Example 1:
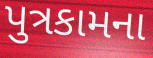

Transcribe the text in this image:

પુત્રકામના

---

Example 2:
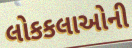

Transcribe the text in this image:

લોકકલાઓની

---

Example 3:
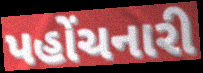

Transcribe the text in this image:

પહોંચનારી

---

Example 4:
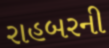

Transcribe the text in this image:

રાહબરની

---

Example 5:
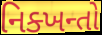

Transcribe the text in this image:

નિક્ખન્તો